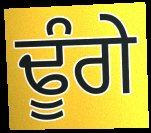
ਢੂੰਗੇ